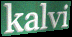
kalvi